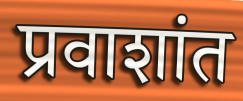
प्रवाशांत